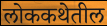
लोककथेतील